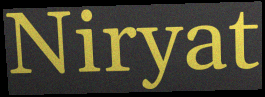
Niryat